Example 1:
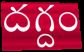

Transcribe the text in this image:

దగ్దం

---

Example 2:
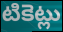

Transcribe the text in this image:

టికెట్లు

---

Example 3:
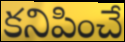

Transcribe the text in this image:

కనిపించే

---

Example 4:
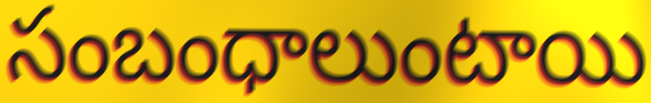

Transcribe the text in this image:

సంబంధాలుంటాయి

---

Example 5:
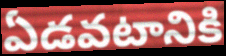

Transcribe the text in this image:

ఏడవటానికి